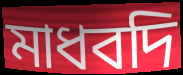
মাধবদি